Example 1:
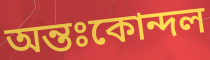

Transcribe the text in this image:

অন্তঃকোন্দল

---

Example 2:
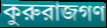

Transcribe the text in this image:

কুরুরাজগণ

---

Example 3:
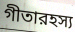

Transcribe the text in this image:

গীতারহস্য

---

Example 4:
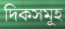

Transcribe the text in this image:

দিকসমূহ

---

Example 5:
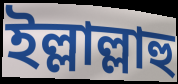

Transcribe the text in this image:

ইল্লাল্লাহু